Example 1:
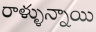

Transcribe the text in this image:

రాళ్ళున్నాయి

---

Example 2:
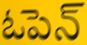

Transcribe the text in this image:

ఓపెన్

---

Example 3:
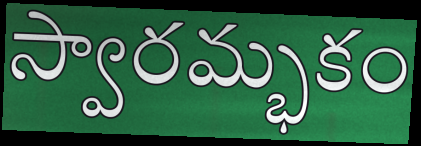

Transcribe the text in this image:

స్వారమ్భకం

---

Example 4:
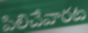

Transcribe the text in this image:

పిలిచేవారట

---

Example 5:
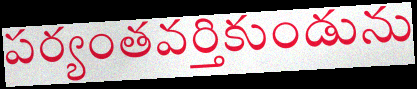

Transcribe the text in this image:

పర్యంతవర్తికుండును